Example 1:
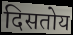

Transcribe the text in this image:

दिसतोय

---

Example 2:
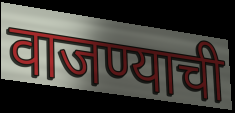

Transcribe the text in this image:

वाजण्याची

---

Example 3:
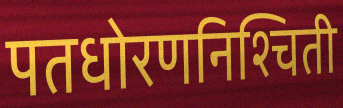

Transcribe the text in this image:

पतधोरणनिश्चिती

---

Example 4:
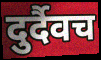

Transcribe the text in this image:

दुर्दैवच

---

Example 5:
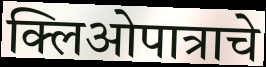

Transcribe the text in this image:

क्लिओपात्राचे